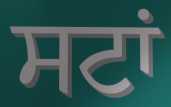
ਸਟਾਂ